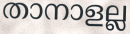
താനാളല്ല